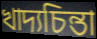
খাদ্যচিন্তা